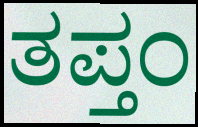
ತಪ್ತಂ